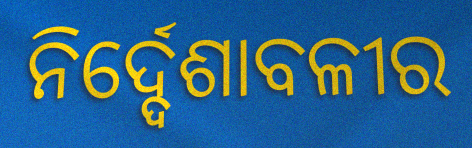
ନିର୍ଦ୍ଦେଶାବଳୀର